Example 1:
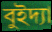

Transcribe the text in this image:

বুইদ্যা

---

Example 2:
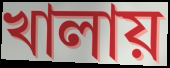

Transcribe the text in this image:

খালায়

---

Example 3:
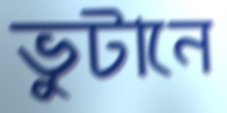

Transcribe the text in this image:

ভুটানে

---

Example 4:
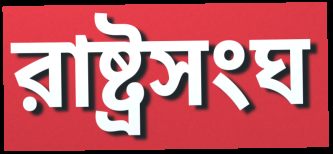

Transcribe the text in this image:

রাষ্ট্রসংঘ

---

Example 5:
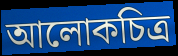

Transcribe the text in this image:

আলোকচিত্র